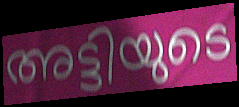
അട്ടിയുടെ